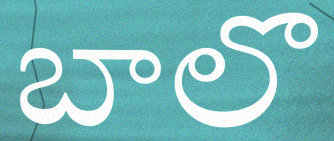
బాలొ